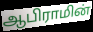
ஆபிராமின்